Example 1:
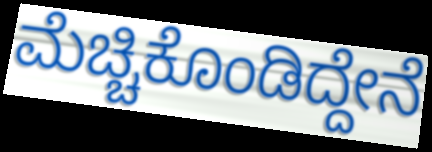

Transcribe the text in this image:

ಮೆಚ್ಚಿಕೊಂಡಿದ್ದೇನೆ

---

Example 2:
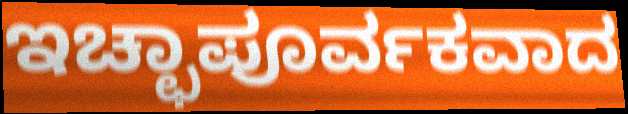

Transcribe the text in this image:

ಇಚ್ಛಾಪೂರ್ವಕವಾದ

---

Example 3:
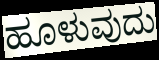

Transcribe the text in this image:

ಹೂಳುವುದು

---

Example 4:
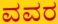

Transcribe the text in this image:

ವವರ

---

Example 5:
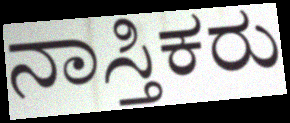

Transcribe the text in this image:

ನಾಸ್ತಿಕರು